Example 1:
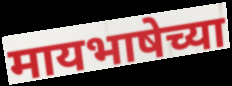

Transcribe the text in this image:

मायभाषेच्या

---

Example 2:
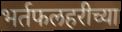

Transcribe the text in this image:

भर्तफलहरीच्या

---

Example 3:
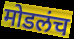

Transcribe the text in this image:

मोडलंच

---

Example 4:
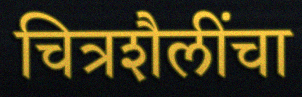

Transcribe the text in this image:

चित्रशैलींचा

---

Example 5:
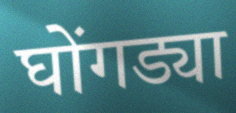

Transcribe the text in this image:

घोंगड्या